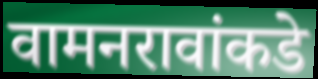
वामनरावांकडे